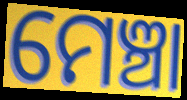
ମେଞ୍ଚା